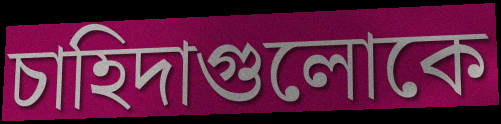
চাহিদাগুলোকে